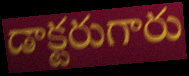
డాక్టరుగారు